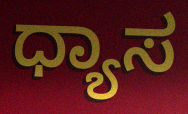
ಧ್ಯಾಸ